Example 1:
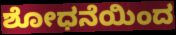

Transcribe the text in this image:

ಶೋಧನೆಯಿಂದ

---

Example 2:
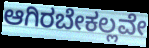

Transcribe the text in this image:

ಆಗಿರಬೇಕಲ್ಲವೇ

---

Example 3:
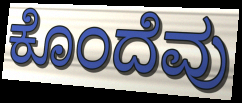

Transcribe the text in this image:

ಕೊಂದೆವು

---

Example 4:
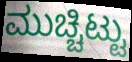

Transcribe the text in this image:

ಮುಚ್ಚಿಟ್ಟು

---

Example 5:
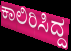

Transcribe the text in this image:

ಕಾಲಿರಿಸಿದ್ದ